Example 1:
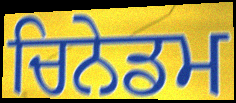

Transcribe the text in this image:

ਚਿਨੇਡਮ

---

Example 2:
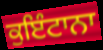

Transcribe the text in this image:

ਕੁਇੰਟਾਨਾ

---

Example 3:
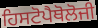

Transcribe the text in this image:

ਹਿਸਟੋਪੈਥੋਲੋਜੀ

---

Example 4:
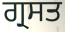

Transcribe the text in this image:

ਗ੍ਰਸਤ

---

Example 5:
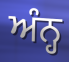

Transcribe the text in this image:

ਅੰਨ੍ਹ